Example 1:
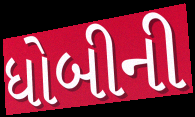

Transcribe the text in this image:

ધોબીની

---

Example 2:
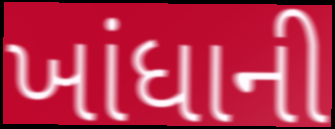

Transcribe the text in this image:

ખાંધાની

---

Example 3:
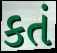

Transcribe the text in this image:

કતં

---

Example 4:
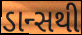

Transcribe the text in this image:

ડાન્સથી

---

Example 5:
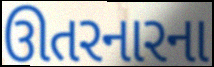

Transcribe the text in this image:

ઊતરનારના